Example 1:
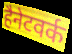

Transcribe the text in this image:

हैनेटवर्क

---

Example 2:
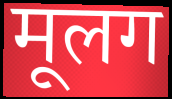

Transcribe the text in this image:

मूलग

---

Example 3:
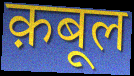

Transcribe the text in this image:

क़बूल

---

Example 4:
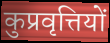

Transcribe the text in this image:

कुप्रवृत्तियों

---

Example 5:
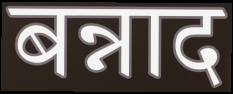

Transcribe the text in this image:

बन्नाद